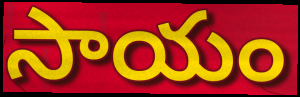
సాయం